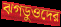
ঝগডুওদের